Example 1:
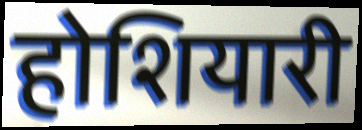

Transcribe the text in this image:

होशियारी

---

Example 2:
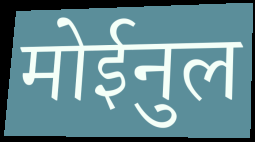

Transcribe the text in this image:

मोईनुल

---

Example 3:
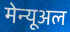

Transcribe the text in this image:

मेन्यूअल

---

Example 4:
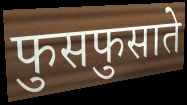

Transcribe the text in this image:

फुसफुसाते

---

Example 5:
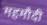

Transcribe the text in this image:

महमौदी